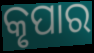
କୃପାର